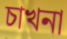
চাখনা